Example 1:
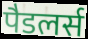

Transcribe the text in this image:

पैडलर्स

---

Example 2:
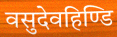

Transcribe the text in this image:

वसुदेवहिण्डि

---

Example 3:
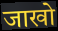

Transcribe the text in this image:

जाखो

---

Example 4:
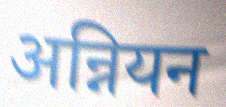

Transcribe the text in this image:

अन्नियन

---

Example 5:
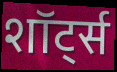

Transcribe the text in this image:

शॉर्ट्स